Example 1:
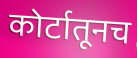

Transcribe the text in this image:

कोर्टातूनच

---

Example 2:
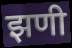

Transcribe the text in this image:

झणी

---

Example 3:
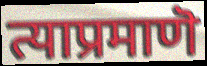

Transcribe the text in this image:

त्याप्रमाणॆ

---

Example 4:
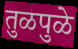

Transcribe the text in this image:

तुळपुळे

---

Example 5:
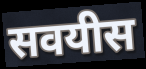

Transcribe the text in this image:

सवयीस